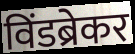
विंडब्रेकर